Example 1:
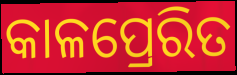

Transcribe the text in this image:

କାଳପ୍ରେରିତ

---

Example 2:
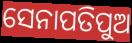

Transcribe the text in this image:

ସେନାପତିପୁଅ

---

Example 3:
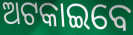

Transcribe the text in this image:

ଅଟକାଇବେ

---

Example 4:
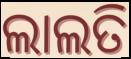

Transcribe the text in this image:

ଲାଲତି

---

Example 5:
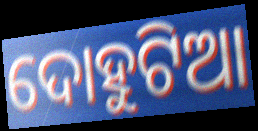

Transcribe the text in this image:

ଦୋହୁଟିଆ